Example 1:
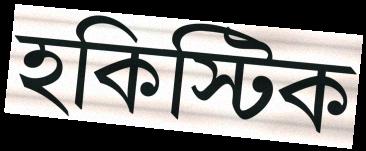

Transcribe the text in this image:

হকিস্টিক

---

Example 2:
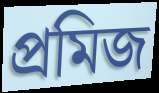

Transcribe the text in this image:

প্রমিজ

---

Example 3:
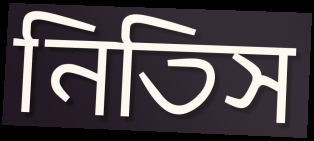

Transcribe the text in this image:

নিতিস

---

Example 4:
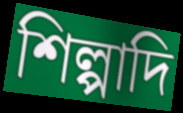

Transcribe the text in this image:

শিল্পাদি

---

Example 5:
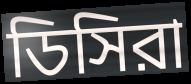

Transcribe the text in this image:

ডিসিরা